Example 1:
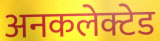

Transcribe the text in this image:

अनकलेक्टेड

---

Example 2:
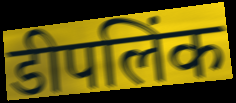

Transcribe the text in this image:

डीपलिंक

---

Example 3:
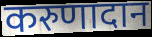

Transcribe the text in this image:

करुणादान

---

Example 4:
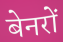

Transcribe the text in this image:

बेनरों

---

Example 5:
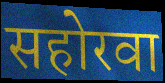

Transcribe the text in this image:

सहोरवा